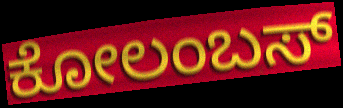
ಕೋಲಂಬಸ್